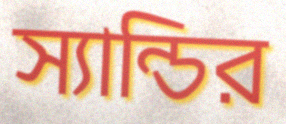
স্যান্ডির